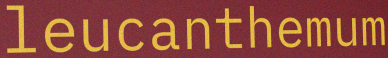
leucanthemum